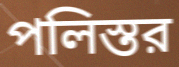
পলিস্তর